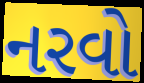
નરવો